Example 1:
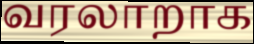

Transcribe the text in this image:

வரலாறாக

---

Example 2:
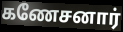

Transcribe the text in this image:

கணேசனார்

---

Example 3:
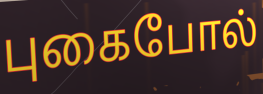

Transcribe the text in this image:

புகைபோல்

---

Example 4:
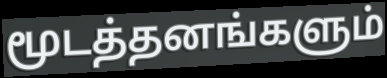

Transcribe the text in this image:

மூடத்தனங்களும்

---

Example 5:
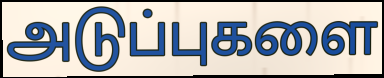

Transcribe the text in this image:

அடுப்புகளை